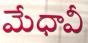
మేధావీ